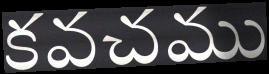
కవచము